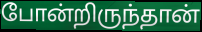
போன்றிருந்தான்